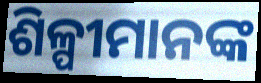
ଶିଳ୍ପୀମାନଙ୍କ